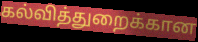
கல்வித்துறைக்கான